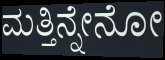
ಮತ್ತಿನ್ನೇನೋ